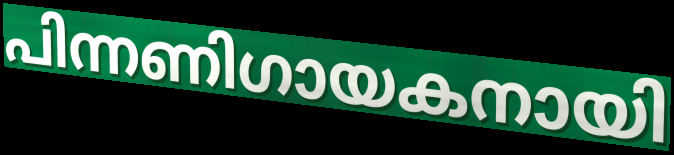
പിന്നണിഗായകനായി